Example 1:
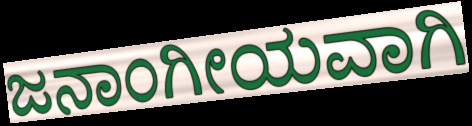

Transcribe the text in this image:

ಜನಾಂಗೀಯವಾಗಿ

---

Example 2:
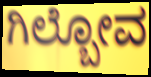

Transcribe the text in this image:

ಗಿಲ್ಬೋವ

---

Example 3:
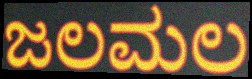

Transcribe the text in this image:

ಜಲಮಲ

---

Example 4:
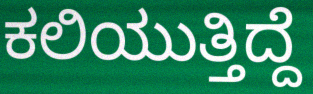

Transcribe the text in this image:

ಕಲಿಯುತ್ತಿದ್ದೆ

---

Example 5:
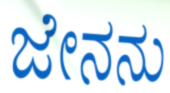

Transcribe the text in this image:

ಜೇನನು